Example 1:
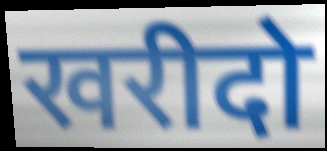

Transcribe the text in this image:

खरीदो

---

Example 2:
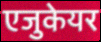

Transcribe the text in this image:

एजुकेयर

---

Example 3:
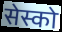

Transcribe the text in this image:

सेस्को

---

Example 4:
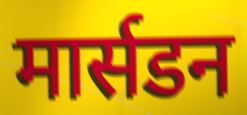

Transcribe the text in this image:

मार्सडन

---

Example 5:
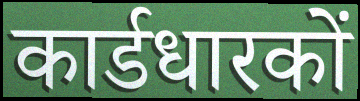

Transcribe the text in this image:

कार्डधारकों